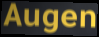
Augen